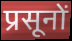
प्रसूनों